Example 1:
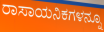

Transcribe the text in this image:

ರಾಸಾಯನಿಕಗಳನ್ನೂ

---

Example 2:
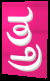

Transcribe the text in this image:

ತ್ತ್ರ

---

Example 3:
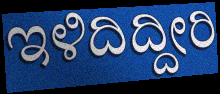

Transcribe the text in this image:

ಇಳಿದಿದ್ದೀರಿ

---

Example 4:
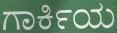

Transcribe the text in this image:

ಗಾರ್ಕಿಯ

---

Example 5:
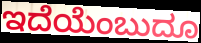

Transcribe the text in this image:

ಇದೆಯೆಂಬುದೂ